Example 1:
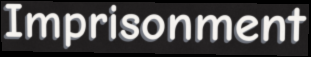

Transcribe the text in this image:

Imprisonment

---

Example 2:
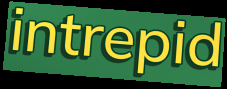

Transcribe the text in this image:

intrepid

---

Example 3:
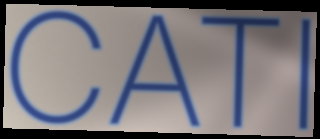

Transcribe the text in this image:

CATI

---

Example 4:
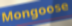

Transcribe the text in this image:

Mongoose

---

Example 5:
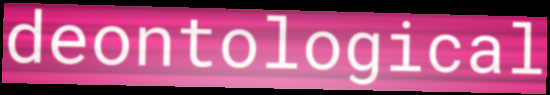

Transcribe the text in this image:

deontological